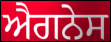
ਐਗਨੇਸ